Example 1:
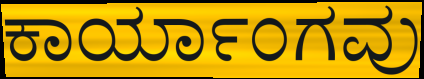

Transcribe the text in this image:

ಕಾರ್ಯಾಂಗವು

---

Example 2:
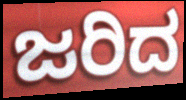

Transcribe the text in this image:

ಜರಿದ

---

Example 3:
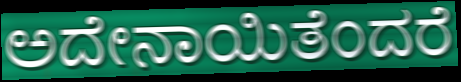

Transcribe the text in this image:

ಅದೇನಾಯಿತೆಂದರೆ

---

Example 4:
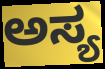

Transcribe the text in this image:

ಅಸ್ಯ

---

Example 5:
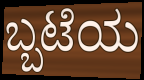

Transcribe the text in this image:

ಬ್ಬಟೆಯ